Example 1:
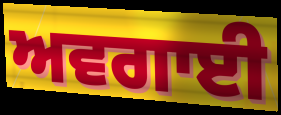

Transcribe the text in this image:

ਅਵਗਾਈ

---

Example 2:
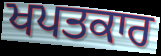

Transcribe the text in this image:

ਖਪਤਕਾਰ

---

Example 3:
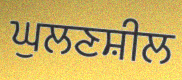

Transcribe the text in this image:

ਘੁਲਣਸ਼ੀਲ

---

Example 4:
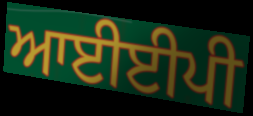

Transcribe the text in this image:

ਆਈਈਪੀ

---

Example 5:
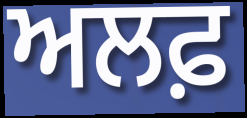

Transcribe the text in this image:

ਅਲਫ਼